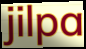
jilpa